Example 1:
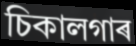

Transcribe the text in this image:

চিকালগাৰ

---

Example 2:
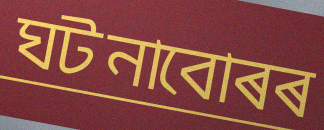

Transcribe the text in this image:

ঘটনাবোৰৰ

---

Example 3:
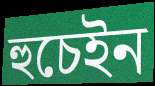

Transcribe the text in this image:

হুচেইন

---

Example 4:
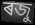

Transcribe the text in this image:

ৰজু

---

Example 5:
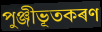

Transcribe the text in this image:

পুঞ্জীভূতকৰণ